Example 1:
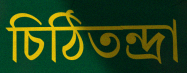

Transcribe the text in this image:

চিঠিতন্দ্রা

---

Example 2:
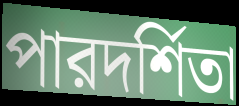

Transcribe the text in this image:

পারদর্শিতা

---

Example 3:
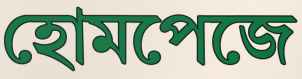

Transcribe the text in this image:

হোমপেজে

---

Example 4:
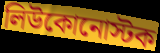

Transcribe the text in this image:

লিউকোনোস্টক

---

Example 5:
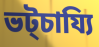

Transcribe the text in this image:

ভট্চায্যি